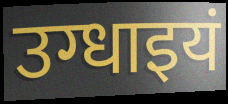
उग्धाइयं